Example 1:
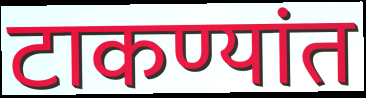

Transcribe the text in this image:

टाकण्यांत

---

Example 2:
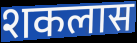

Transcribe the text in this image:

शकलास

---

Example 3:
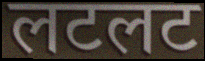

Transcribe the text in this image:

लटलट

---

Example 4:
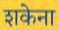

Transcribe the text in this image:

शकेना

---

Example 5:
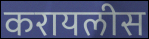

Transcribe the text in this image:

करायलीस